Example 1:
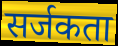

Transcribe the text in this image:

सर्जकता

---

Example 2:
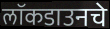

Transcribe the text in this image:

लॉकडाउनचे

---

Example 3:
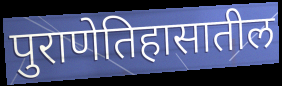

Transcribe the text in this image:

पुराणेतिहासातील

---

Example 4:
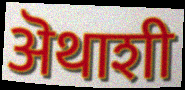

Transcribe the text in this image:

ऄथाशी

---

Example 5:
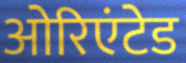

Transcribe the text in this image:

ओरिएंटेड